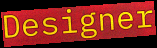
Designer